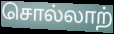
சொல்லாற்